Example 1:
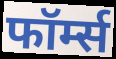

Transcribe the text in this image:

फॉर्म्स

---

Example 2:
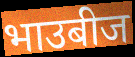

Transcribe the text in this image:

भाउबीज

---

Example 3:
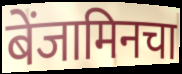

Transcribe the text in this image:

बेंजामिनचा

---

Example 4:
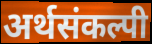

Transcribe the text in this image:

अर्थसंकल्पी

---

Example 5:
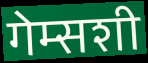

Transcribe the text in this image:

गेम्सशी